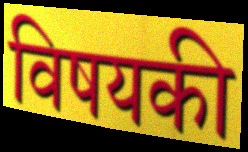
विषयकी